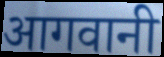
आगवानी